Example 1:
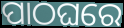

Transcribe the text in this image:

ପାଠଘରେ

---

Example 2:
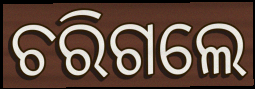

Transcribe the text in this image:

ଚରିଗଲେ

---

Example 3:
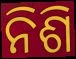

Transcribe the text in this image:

ନିଶି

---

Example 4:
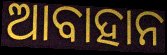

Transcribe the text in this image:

ଆବାହାନ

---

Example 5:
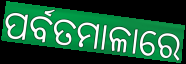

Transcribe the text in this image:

ପର୍ବତମାଳାରେ